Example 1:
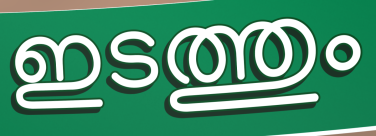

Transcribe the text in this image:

ഇടത്തും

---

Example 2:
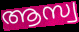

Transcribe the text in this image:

ആസ്വ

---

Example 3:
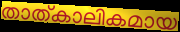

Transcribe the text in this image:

താത്കാലികമായ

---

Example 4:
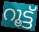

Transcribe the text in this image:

റൂട്ട്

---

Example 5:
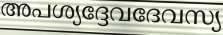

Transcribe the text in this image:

അപശ്യദ്ദേവദേവസ്യ